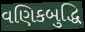
વણિકબુદ્ધિ